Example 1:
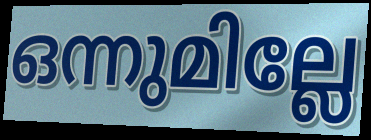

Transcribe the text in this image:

ഒന്നുമില്ലേ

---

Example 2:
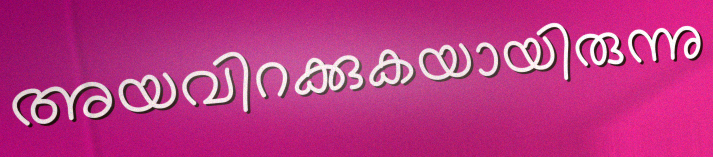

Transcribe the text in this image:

അയവിറക്കുകയായിരുന്നു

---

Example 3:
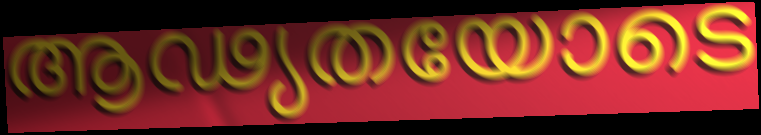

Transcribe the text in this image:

ആഢ്യതയോടെ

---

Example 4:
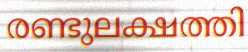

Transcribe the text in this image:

രണ്ടുലക്ഷത്തി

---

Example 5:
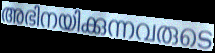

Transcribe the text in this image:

അഭിനയിക്കുന്നവരുടെ